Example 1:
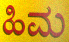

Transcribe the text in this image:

ಹಿಮ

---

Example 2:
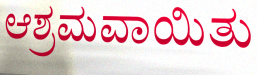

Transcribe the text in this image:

ಆಶ್ರಮವಾಯಿತು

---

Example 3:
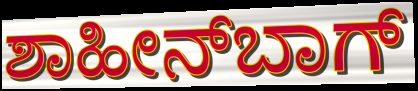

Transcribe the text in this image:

ಶಾಹೀನ್‌ಬಾಗ್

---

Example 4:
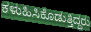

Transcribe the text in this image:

ಕಳುಹಿಸಿಕೊಡುತ್ತಿದ್ದರು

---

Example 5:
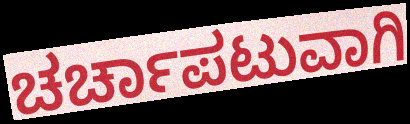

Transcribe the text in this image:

ಚರ್ಚಾಪಟುವಾಗಿ